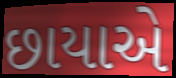
છાયાએ